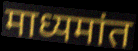
माध्यमांत